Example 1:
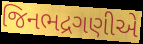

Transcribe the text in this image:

જિનભદ્રગણીએ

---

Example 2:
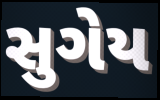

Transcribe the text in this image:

સુગેય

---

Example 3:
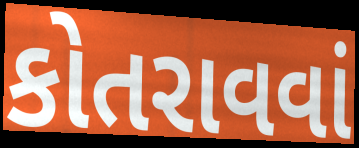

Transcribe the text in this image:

કોતરાવવાં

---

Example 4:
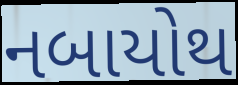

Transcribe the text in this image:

નબાયોથ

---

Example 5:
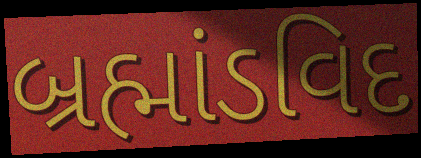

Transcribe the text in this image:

બ્રહ્માંડવિદ